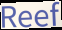
Reef